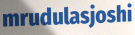
mrudulasjoshi